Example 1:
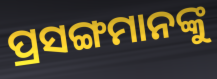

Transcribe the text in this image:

ପ୍ରସଙ୍ଗମାନଙ୍କୁ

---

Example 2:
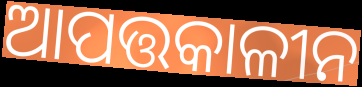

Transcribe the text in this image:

ଆପତ୍ତକାଳୀନ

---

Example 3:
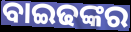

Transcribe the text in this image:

ବାଇଢଙ୍କର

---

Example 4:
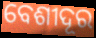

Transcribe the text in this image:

ବେଶୀଦୂର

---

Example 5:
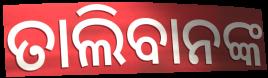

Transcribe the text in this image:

ତାଲିବାନଙ୍କ